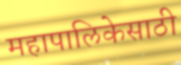
महापालिकेसाठी